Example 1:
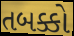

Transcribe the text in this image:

તબક્કો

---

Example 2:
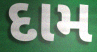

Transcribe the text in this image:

દામ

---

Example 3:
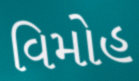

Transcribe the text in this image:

વિમોહ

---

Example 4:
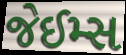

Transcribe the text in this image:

જેઈમ્સ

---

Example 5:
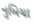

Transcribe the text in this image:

નુબિયા